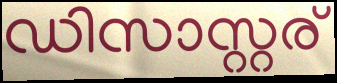
ഡിസാസ്റ്റര്